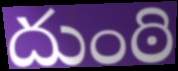
దుంఠి